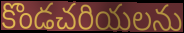
కొండచరియలను